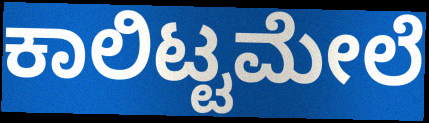
ಕಾಲಿಟ್ಟಮೇಲೆ